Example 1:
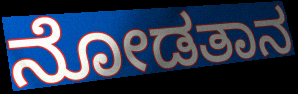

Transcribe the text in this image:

ನೋಡತಾನ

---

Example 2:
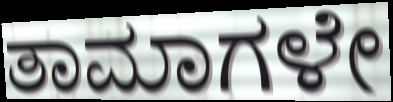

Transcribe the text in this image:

ತಾಮಾಗಳೇ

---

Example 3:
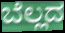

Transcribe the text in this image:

ಬೆಲ್ಲದ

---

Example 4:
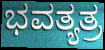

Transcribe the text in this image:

ಭವತ್ಯತ್ರ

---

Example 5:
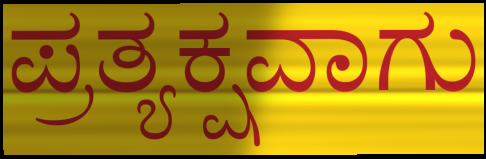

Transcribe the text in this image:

ಪ್ರತ್ಯಕ್ಷವಾಗು